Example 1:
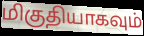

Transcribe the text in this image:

மிகுதியாகவும்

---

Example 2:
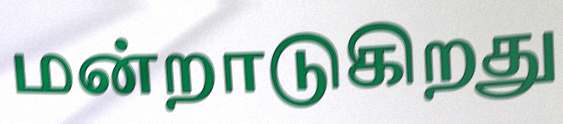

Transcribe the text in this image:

மன்றாடுகிறது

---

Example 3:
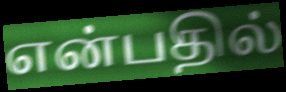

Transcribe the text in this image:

என்பதில்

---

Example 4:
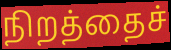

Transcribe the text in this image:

நிறத்தைச்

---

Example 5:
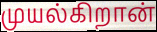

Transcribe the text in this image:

முயல்கிறான்